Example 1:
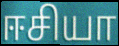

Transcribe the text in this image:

ஈசியா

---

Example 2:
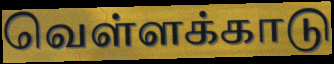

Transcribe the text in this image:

வெள்ளக்காடு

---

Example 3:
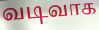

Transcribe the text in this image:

வடிவாக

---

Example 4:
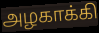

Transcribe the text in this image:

அழகாக்கி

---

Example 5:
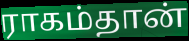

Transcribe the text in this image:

ராகம்தான்